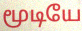
மூடியே